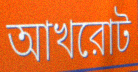
আখরোট